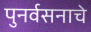
पुनर्वसनाचे